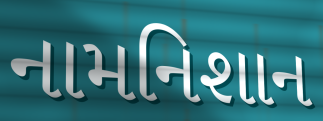
નામનિશાન